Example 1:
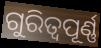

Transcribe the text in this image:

ଗୁରିତ୍ୱପୂର୍ଣ୍ଣ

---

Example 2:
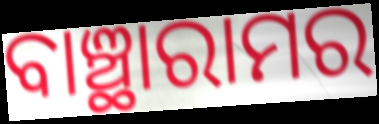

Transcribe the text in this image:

ବାଞ୍ଛାରାମର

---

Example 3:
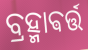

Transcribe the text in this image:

ବ୍ରହ୍ମାଵର୍ତ୍ତ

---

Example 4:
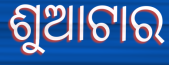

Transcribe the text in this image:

ଶୁଆଟାର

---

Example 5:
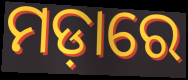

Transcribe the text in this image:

ମଡ଼ାରେ